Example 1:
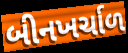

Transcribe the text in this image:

બીનખર્ચાળ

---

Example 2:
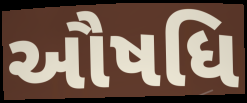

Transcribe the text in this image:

ઔષધિ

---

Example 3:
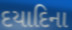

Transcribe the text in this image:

દયાદિના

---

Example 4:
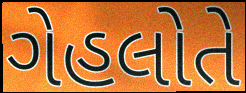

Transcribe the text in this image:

ગેહલોતે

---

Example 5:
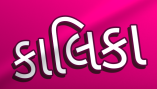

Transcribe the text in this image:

કાલિકા